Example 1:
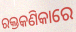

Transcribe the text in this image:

ରକ୍ତକଣିକାରେ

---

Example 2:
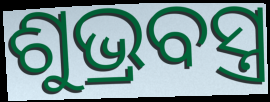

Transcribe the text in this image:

ଶୁଭ୍ରବସ୍ତ୍ର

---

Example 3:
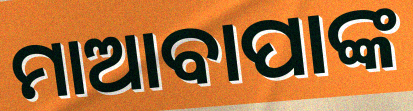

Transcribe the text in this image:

ମାଆବାପାଙ୍କ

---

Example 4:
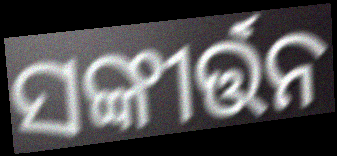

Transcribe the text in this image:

ସଙ୍କୀର୍ତ୍ତନ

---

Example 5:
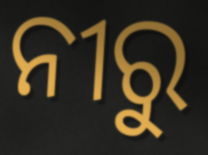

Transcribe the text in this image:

ନୀରୁ